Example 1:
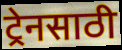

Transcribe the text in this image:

ट्रेनसाठी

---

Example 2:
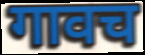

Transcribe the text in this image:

गावच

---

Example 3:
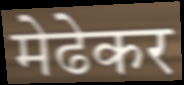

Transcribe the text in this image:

मेढेकर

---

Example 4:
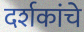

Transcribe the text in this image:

दर्शकांचे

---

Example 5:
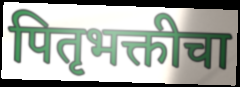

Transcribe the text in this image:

पितृभक्तीचा